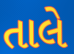
તાલે